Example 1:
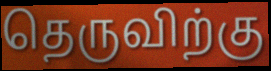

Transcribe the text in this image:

தெருவிற்கு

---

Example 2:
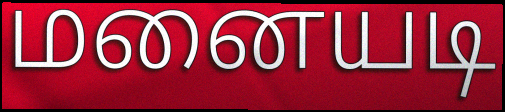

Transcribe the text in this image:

மனையடி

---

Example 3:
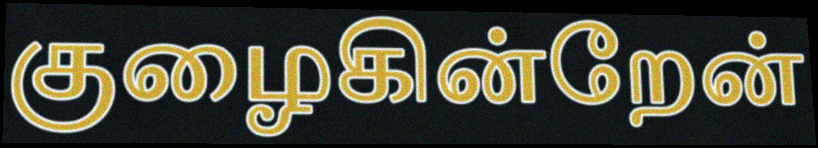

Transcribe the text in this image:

குழைகின்றேன்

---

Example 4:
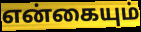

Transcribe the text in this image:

என்கையும்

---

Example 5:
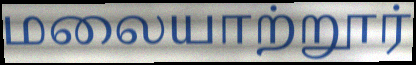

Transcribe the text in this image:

மலையாற்றூர்